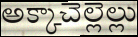
అక్కాచెల్లెల్లు